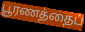
பூரணத்தைப்